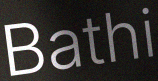
Bathi